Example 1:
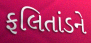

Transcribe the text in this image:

ફલિતાંડને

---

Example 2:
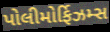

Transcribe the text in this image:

પોલીમોર્ફિઝમ્સ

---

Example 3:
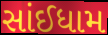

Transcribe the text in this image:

સાંઈધામ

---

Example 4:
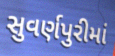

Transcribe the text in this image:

સુવર્ણપુરીમાં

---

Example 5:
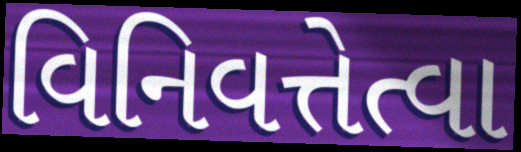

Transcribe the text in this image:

વિનિવત્તેત્વા